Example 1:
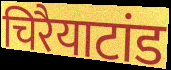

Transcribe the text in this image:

चिरैयाटांड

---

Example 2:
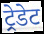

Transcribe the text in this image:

ट्रेडेट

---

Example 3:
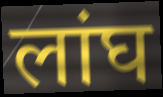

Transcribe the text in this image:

लांघ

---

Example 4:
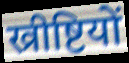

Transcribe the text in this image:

ख्रीष्टियों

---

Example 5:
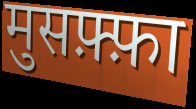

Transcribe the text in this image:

मुसफ़्फ़ा